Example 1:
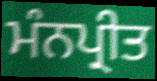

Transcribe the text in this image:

ਮੰਨਪ੍ਰੀਤ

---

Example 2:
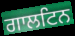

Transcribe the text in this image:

ਗਾਲਟਿਨ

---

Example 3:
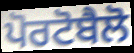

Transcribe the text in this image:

ਪੋਰਟੋਬੈਲੋ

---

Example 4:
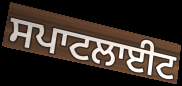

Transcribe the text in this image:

ਸਪਾਟਲਾਈਟ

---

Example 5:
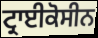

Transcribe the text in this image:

ਟ੍ਰਾਈਕੋਸੀਨ